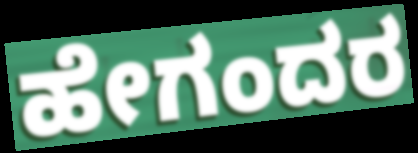
ಹೇಗಂದರ